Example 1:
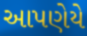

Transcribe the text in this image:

આપણેયે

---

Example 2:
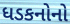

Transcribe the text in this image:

ધડકનોનો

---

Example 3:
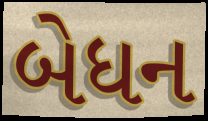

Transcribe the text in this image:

બેધન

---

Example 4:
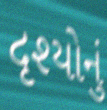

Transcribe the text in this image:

દૃશ્યોનું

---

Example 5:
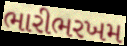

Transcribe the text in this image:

ભારીભરખમ